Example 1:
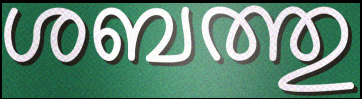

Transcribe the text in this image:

ശബത്തു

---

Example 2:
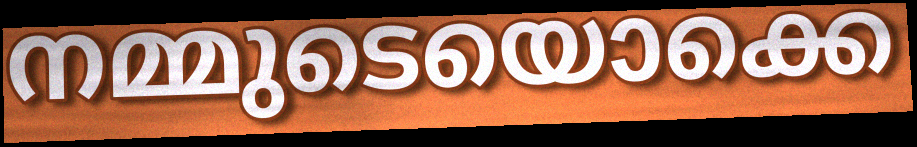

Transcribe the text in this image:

നമ്മുടെയൊക്കെ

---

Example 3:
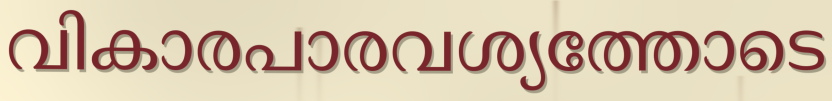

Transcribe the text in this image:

വികാരപാരവശ്യത്തോടെ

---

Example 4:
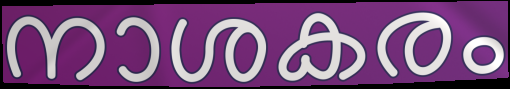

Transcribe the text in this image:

നാശകരം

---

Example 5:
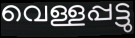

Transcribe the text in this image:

വെള്ളപ്പട്ടു